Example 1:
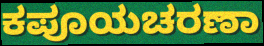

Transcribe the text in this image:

ಕಪೂಯಚರಣಾ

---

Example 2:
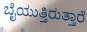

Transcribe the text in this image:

ಬೈಯುತ್ತಿರುತ್ತಾರೆ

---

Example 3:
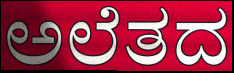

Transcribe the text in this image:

ಅಲೆತದ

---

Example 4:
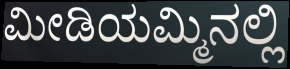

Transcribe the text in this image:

ಮೀಡಿಯಮ್ಮಿನಲ್ಲಿ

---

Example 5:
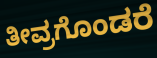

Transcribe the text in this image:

ತೀವ್ರಗೊಂಡರೆ